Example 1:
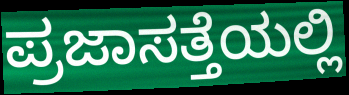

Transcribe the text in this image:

ಪ್ರಜಾಸತ್ತೆಯಲ್ಲಿ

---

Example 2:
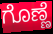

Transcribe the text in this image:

ಗೊಣ್ಣೆ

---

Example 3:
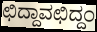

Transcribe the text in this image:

ಛಿದ್ದಾವಛಿದ್ದಂ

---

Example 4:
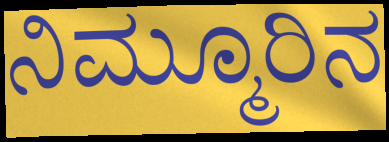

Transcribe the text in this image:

ನಿಮ್ಮೂರಿನ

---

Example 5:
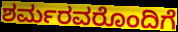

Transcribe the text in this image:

ಶರ್ಮರವರೊಂದಿಗೆ